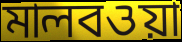
মালবওয়া